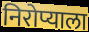
निरोप्याला